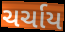
ચર્ચાય